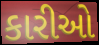
કારીઓ